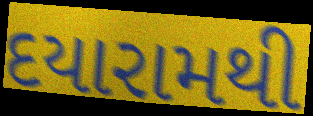
દયારામથી